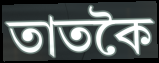
তাতকৈ